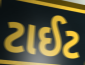
ટાઈટ